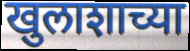
खुलाशाच्या